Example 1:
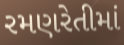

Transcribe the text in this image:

રમણરેતીમાં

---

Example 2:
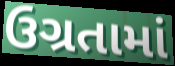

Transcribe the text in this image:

ઉગ્રતામાં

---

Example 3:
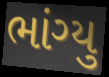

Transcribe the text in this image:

ભાંગ્યુ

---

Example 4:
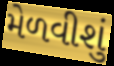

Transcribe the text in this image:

મેળવીશું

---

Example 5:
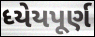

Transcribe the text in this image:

ધ્યેયપૂર્ણ